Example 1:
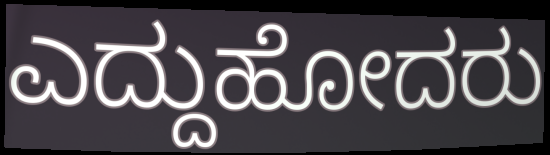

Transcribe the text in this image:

ಎದ್ದುಹೋದರು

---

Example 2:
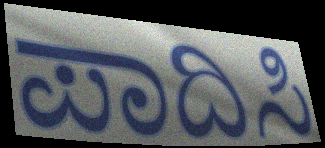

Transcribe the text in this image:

ಪಾದಿಸಿ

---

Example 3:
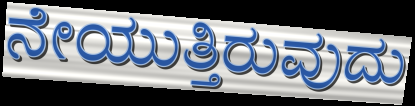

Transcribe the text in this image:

ನೇಯುತ್ತಿರುವುದು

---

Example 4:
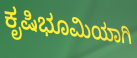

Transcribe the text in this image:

ಕೃಷಿಭೂಮಿಯಾಗಿ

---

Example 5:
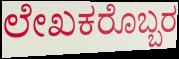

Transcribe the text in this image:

ಲೇಖಕರೊಬ್ಬರ